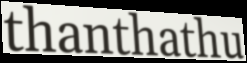
thanthathu